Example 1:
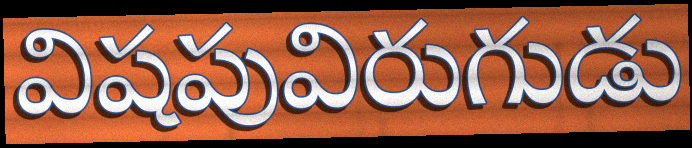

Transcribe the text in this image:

విషపువిరుగుడు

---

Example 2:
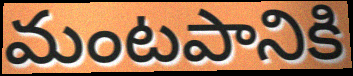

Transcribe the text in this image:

మంటపానికి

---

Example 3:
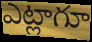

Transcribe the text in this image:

ఎట్లాగూ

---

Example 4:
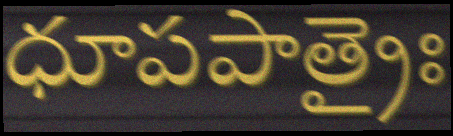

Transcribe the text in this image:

ధూపపాత్రైః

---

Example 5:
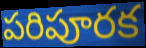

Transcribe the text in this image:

పరిపూరక